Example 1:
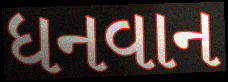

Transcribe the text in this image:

ધનવાન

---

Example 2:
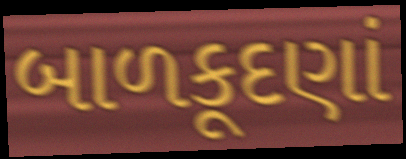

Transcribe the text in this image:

બાળકૂદણાં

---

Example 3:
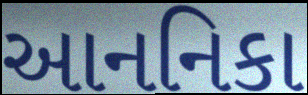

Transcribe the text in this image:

આનનિકા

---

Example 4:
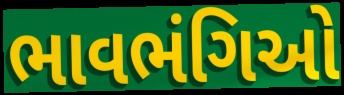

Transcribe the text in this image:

ભાવભંગિઓ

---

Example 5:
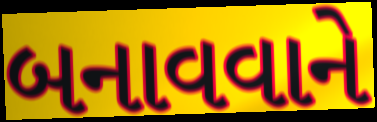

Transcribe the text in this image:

બનાવવાને